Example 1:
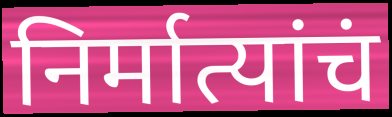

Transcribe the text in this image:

निर्मात्यांचं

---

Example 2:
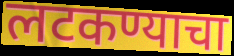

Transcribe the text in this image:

लटकण्याचा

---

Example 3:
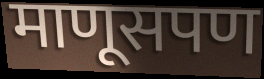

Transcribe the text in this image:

माणूसपण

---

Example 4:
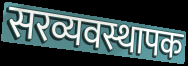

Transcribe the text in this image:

सरव्यवस्थापक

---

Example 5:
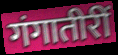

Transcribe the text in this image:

गंगातीरीं